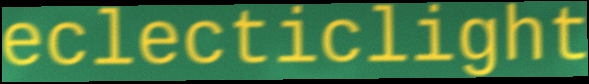
eclecticlight